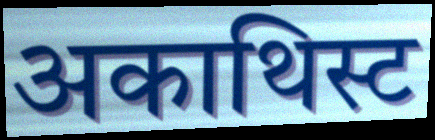
अकाथिस्ट